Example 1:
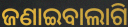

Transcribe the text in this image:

ଜଣାଇବାଲାଗି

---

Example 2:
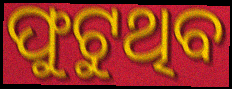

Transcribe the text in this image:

ଫୁଟୁଥିବ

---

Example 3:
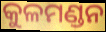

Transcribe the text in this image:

କୁଳମଣ୍ଡନ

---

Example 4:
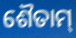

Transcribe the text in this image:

ଶୈତାମ୍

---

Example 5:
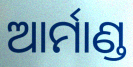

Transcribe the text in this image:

ଆର୍ମାଣ୍ଡ